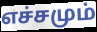
எச்சமும்